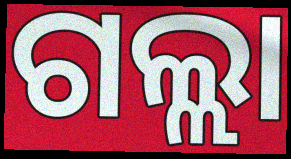
ଗଲ୍ଲା